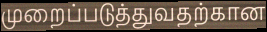
முறைப்படுத்துவதற்கான